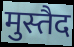
मुस्‍तैद